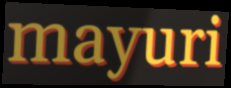
mayuri